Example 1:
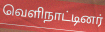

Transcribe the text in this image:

வெளிநாட்டினர்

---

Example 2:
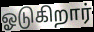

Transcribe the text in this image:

ஓடுகிறார்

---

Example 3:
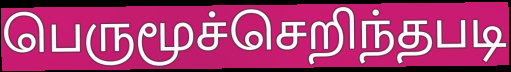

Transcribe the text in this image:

பெருமூச்செறிந்தபடி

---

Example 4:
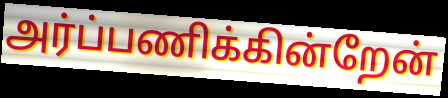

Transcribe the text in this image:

அர்ப்பணிக்கின்றேன்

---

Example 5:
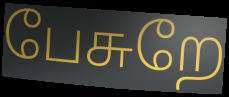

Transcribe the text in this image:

பேசுறே